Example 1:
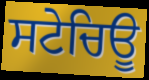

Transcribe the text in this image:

ਸਟੇਚਿਊ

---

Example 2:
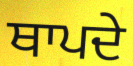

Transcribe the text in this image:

ਥਾਪਦੇ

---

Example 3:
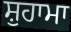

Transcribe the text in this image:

ਸ਼ੁਹਾਮਾ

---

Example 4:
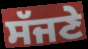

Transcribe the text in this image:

ਸੱਜਣੇ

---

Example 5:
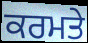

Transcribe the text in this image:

ਕਰਮਤੇ